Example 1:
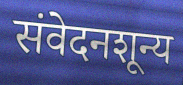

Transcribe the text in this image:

संवेदनशून्य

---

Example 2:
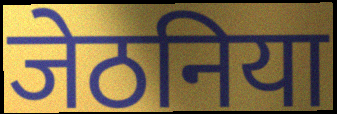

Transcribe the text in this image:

जेठनिया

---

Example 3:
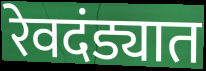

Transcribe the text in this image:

रेवदंड्यात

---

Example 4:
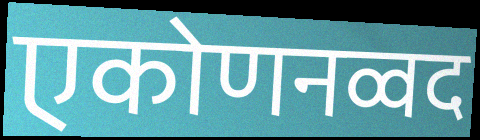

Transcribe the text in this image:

एकोणनव्वद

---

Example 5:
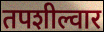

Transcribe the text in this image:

तपशील्वार